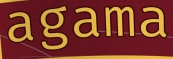
agama